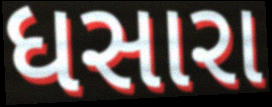
ધસારા